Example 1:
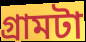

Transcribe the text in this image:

গ্রামটা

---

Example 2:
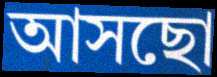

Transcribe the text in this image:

আসছো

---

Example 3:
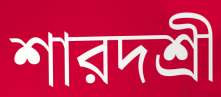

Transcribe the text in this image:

শারদশ্রী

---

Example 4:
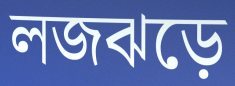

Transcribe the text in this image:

লজঝড়ে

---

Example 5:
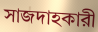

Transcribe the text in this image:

সাজদাহকারী